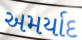
અમર્યાદ